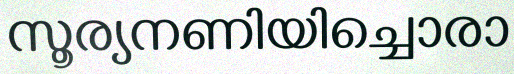
സൂര്യനണിയിച്ചൊരാ